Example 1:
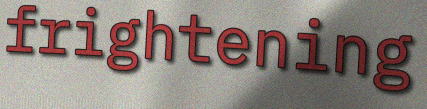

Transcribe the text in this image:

frightening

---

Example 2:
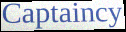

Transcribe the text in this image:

Captaincy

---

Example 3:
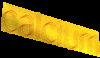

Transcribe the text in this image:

calcium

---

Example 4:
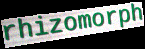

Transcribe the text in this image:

rhizomorph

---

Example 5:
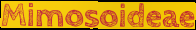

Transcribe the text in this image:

Mimosoideae